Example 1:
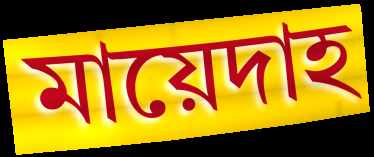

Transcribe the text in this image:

মায়েদাহ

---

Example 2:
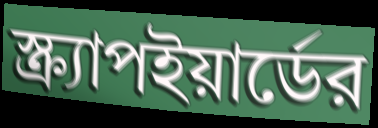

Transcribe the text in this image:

স্ক্র্যাপইয়ার্ডের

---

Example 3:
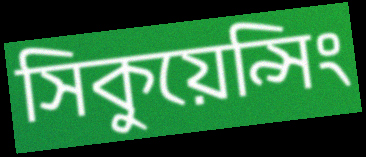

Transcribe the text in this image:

সিকুয়েন্সিং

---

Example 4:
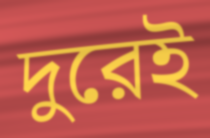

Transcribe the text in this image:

দুরেই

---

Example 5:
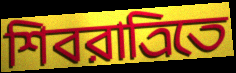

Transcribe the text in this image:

শিবরাত্রিতে